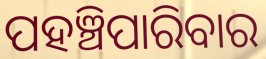
ପହଞ୍ଚିପାରିବାର